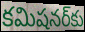
కమిషనర్‌కు